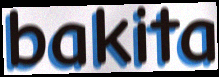
bakita